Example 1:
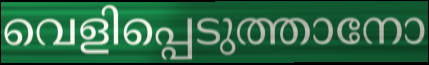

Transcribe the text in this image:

വെളിപ്പെടുത്താനോ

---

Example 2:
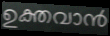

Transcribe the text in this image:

ഉക്തവാൻ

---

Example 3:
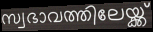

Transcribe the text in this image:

സ്വഭാവത്തിലേയ്ക്ക്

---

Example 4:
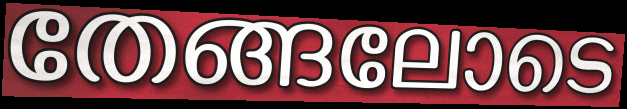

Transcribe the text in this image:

തേങ്ങലോടെ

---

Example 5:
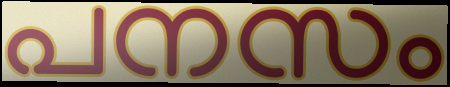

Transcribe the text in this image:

പനസം